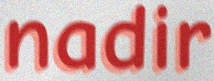
nadir